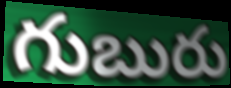
గుబురు